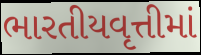
ભારતીયવૃત્તીમાં